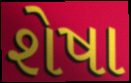
શેષા